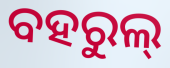
ବହରୁଲ୍